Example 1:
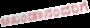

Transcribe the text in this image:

ಅಖಂಡಾನಂದರಿಗೆ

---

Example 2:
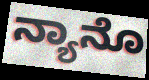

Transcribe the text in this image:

ನ್ಯಾನೊ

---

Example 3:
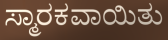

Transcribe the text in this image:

ಸ್ಮಾರಕವಾಯಿತು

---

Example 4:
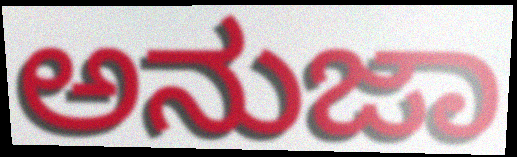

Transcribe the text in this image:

ಅನುಜಾ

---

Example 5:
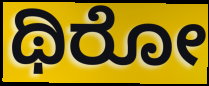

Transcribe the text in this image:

ಥಿರೋ